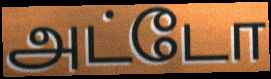
அட்டோ